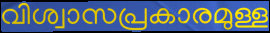
വിശ്വാസപ്രകാരമുള്ള